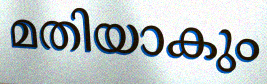
മതിയാകും